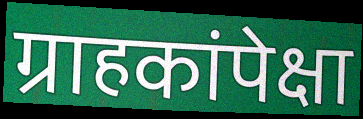
ग्राहकांपेक्षा